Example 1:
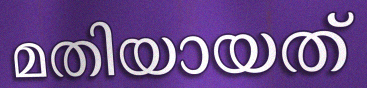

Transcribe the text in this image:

മതിയായത്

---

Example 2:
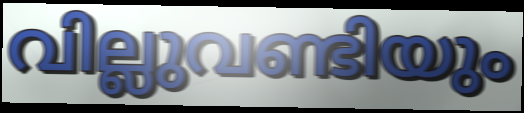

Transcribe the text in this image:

വില്ലുവണ്ടിയും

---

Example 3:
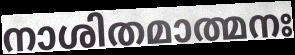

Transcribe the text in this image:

നാശിതമാത്മനഃ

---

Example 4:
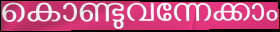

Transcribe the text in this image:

കൊണ്ടുവന്നേക്കാം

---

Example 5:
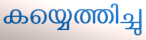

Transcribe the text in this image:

കയ്യെത്തിച്ചു